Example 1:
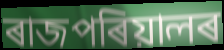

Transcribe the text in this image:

ৰাজপৰিয়ালৰ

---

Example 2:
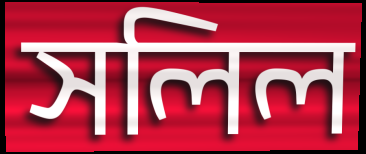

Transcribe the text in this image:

সলিল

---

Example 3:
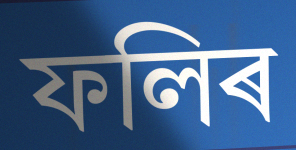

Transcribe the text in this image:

ফলিৰ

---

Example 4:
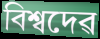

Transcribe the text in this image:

বিশ্বদেৱ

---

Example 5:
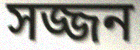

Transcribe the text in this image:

সজ্জন